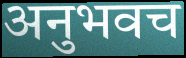
अनुभवच